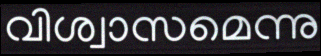
വിശ്വാസമെന്നു